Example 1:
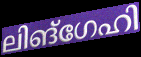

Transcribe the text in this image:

ലിങ്ഗേഹി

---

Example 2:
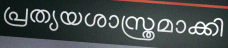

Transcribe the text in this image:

പ്രത്യയശാസ്ത്രമാക്കി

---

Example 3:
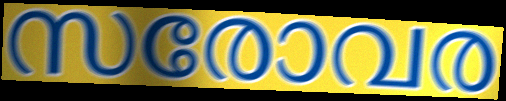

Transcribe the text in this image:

സരോവര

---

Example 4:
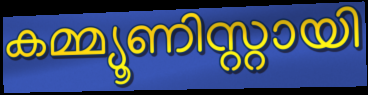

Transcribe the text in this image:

കമ്മ്യൂണിസ്റ്റായി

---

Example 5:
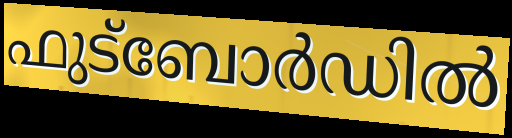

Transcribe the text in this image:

ഫുട്ബോർഡിൽ